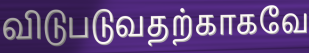
விடுபடுவதற்காகவே